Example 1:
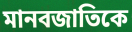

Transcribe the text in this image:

মানবজাতিকে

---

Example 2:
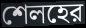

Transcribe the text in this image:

শেলহের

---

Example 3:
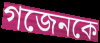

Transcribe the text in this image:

গজেনকে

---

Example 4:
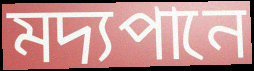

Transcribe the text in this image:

মদ্যপানে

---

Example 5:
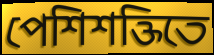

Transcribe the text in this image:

পেশিশক্তিতে